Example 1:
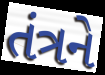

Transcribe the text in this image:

તંત્રને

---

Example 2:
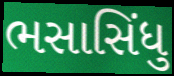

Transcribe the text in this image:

ભસાસિંધુ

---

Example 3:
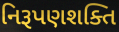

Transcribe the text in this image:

નિરૂપણશક્તિ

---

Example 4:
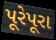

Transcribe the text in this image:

પૂરેપૂરા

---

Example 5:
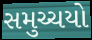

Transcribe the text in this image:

સમુચ્ચયો